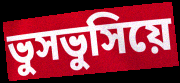
ভুসভুসিয়ে